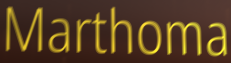
Marthoma